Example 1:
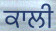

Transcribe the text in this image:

ਕਾਲੀ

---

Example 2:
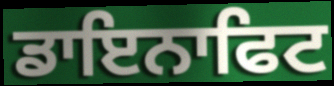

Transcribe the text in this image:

ਡਾਇਨਾਫਿਟ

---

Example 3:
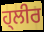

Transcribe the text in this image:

ਹ੍ਲੀਰ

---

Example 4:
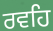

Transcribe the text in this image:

ਰਵਹਿ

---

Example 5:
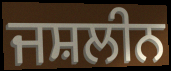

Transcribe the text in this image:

ਜਸ਼ਲੀਨ